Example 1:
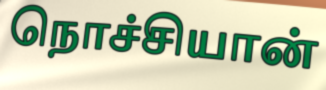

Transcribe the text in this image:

நொச்சியான்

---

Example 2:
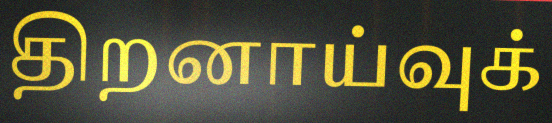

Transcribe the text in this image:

திறனாய்வுக்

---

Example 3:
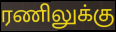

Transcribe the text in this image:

ரணிலுக்கு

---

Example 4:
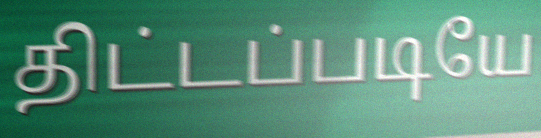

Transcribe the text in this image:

திட்டப்படியே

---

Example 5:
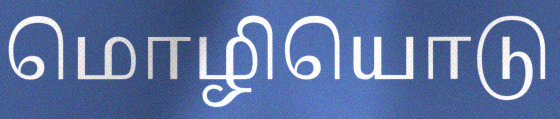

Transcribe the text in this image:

மொழியொடு